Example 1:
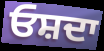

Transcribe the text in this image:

ਓਸ਼ਦਾ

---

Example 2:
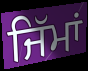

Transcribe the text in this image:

ਜਿੱਮਾਂ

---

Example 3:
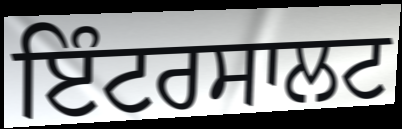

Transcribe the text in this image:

ਇੰਟਰਸਾਲਟ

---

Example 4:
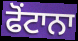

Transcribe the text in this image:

ਫੋਂਟਾਨਾ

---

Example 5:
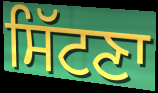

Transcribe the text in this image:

ਸਿੱਟਣਾ